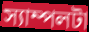
স্যাম্পলটা